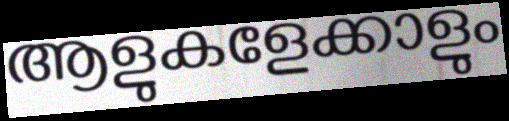
ആളുകളേക്കാളും